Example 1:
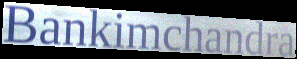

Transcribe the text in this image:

Bankimchandra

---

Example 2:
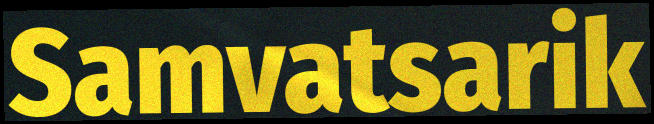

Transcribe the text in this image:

Samvatsarik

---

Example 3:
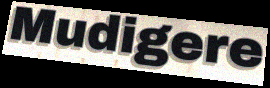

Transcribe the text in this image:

Mudigere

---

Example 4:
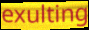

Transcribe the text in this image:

exulting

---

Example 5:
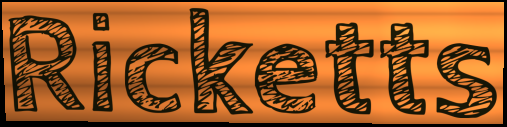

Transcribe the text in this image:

Ricketts